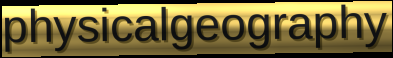
physicalgeography